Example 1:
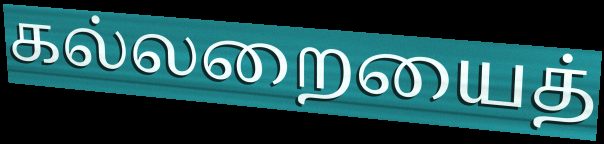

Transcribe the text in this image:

கல்லறையைத்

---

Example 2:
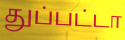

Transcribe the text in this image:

துப்பட்டா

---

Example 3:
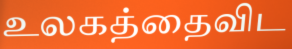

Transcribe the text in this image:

உலகத்தைவிட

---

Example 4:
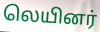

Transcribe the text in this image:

லெயினர்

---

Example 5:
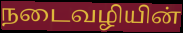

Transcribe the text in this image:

நடைவழியின்